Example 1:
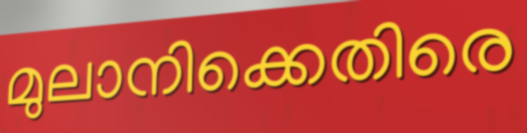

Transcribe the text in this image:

മുലാനിക്കെതിരെ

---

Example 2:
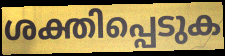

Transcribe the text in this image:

ശക്തിപ്പെടുക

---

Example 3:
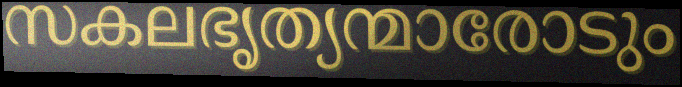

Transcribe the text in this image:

സകലഭൃത്യന്മാരോടും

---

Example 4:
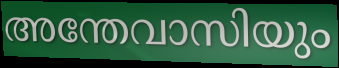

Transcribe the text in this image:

അന്തേവാസിയും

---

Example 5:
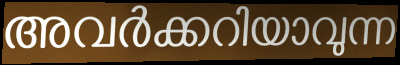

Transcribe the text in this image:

അവർക്കറിയാവുന്ന